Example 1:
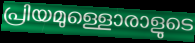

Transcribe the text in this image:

പ്രിയമുള്ളൊരാളുടെ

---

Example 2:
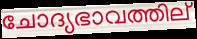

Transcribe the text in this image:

ചോദ്യഭാവത്തില്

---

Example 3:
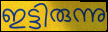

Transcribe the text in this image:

ഇട്ടിരുന്നു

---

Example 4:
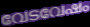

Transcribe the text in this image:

വേടവേഷം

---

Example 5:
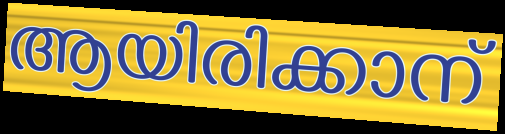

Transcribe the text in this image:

ആയിരിക്കാന്